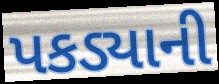
પકડ્યાની